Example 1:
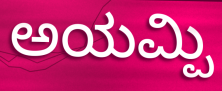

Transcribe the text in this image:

ಅಯಮ್ಪಿ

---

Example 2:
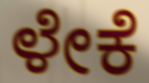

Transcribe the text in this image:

ಳೇಕೆ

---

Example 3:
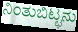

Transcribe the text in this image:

ನಿಂತುಬಿಟ್ಟನು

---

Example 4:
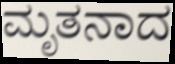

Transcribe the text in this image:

ಮೃತನಾದ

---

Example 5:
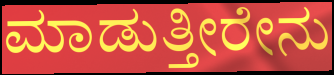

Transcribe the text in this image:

ಮಾಡುತ್ತೀರೇನು